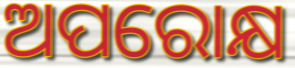
ଅପରୋକ୍ଷ